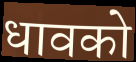
धावको